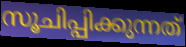
സൂചിപ്പിക്കുന്നത്